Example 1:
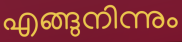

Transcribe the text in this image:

എങ്ങുനിന്നും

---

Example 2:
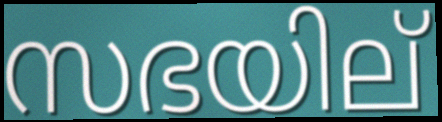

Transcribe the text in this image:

സഭയില്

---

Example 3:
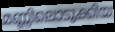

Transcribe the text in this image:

മണ്ണിലൊടുക്കിയ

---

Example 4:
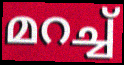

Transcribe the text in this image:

മറച്ച്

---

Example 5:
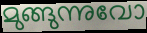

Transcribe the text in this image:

മുങ്ങുന്നുവോ